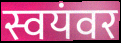
स्वयंवर